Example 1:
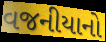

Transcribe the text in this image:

વજનીયાનો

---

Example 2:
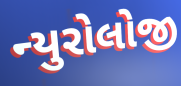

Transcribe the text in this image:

ન્યુરોલોજી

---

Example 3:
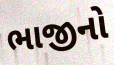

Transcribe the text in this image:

ભાજીનો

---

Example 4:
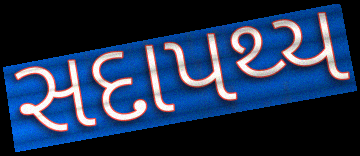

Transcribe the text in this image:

સદાપથ્ય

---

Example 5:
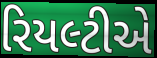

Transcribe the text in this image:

રિયલ્ટીએ